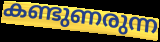
കണ്ടുണരുന്ന